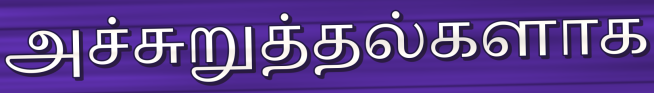
அச்சுறுத்தல்களாக